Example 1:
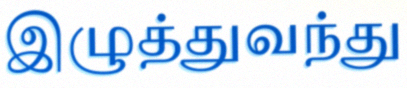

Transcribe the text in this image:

இழுத்துவந்து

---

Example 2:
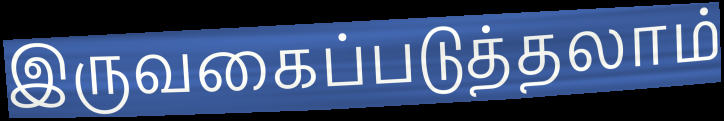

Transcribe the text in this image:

இருவகைப்படுத்தலாம்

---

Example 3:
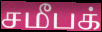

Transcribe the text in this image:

சமீபக்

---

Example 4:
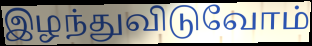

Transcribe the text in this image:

இழந்துவிடுவோம்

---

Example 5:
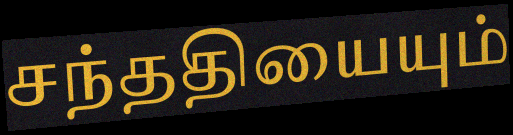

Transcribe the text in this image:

சந்ததியையும்